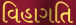
વિહાગતિ